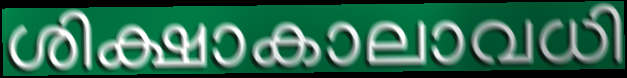
ശിക്ഷാകാലാവധി